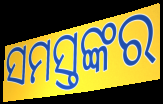
ସମସ୍ତଙ୍କର